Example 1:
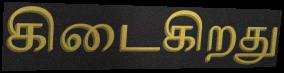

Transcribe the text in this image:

கிடைகிறது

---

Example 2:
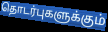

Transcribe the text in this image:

தொடர்புகளுக்கும்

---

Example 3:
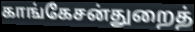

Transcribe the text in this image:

காங்கேசன்துறைத்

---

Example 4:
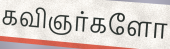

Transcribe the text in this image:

கவிஞர்களோ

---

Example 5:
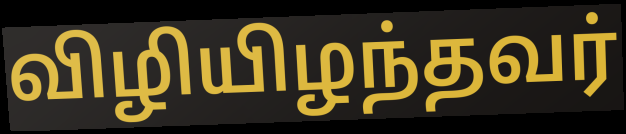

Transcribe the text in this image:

விழியிழந்தவர்